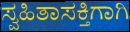
ಸ್ವಹಿತಾಸಕ್ತಿಗಾಗಿ